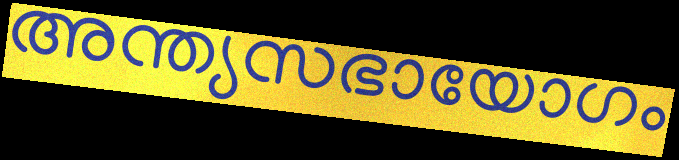
അന്ത്യസഭായോഗം